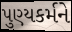
પુણ્યકર્મને